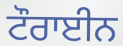
ਟੌਰਾਈਨ